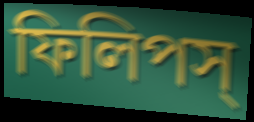
ফিলিপস্